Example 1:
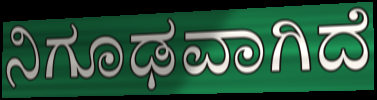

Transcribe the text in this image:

ನಿಗೂಢವಾಗಿದೆ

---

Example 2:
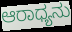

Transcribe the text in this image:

ಆರಾಧ್ಯನು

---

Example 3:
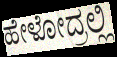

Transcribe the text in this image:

ಹೇಳೋದ್ರಲ್ಲಿ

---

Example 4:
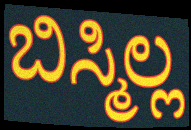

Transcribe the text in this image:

ಬಿಸ್ಮಿಲ್ಲ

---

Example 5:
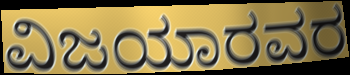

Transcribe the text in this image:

ವಿಜಯಾರವರ